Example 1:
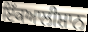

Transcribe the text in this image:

ਇੱਕਆਲੀਸ਼ਾਨ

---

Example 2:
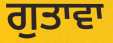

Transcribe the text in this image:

ਗੁਤਾਵਾ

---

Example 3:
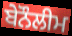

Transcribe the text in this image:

ਬੇਨੌਲੀਮ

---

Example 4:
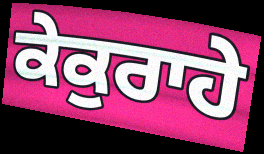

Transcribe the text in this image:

ਕੇਕੁਰਾਹੇ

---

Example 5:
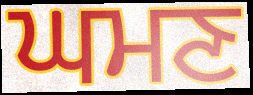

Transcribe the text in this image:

ਘਮਣ